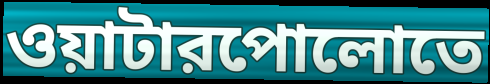
ওয়াটারপোলোতে